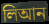
লিআন